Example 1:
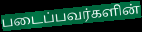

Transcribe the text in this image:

படைப்பவர்களின்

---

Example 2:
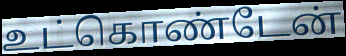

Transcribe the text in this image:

உட்கொண்டேன்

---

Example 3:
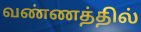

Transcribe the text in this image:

வண்ணத்தில்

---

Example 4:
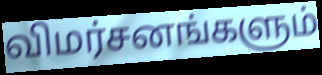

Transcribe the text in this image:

விமர்சனங்களும்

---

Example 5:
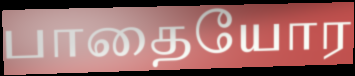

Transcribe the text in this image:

பாதையோர